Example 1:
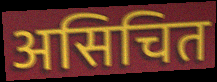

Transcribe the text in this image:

असिचित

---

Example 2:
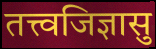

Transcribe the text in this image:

तत्त्वजिज्ञासु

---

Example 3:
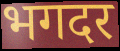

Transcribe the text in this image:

भगदर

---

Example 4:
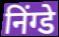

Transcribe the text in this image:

निंग्डे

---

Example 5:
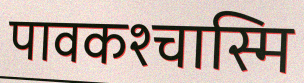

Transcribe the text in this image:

पावकश्चास्मि